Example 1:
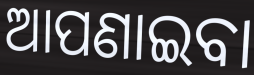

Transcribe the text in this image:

ଆପଣାଇବା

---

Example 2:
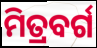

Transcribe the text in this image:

ମିତ୍ରବର୍ଗ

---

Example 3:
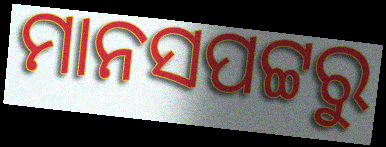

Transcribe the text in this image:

ମାନସପଟ୍ଟରୁ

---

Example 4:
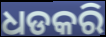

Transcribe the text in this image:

ଧଡକରି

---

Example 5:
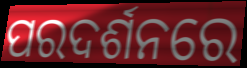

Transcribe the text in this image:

ପରଦର୍ଶନରେ